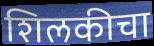
शिलकीचा